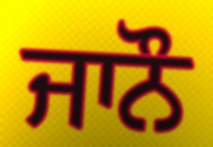
ਜਾਨੌ